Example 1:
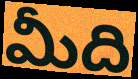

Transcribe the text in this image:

మీది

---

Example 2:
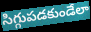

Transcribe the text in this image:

సిగ్గుపడకుండేలా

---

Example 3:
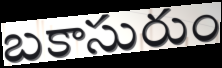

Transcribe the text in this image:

బకాసురుం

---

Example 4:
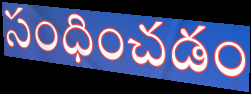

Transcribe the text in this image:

సంధించడం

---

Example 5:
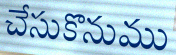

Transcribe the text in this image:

చేసుకొనుము